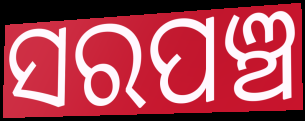
ସରପଞ୍ଚ